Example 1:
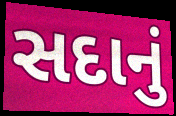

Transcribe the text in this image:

સદાનું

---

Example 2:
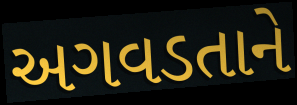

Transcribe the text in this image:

અગવડતાને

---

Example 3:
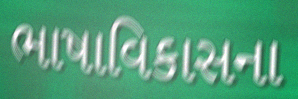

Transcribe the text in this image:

ભાષાવિકાસના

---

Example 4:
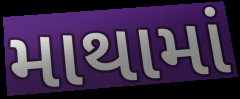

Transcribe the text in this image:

માથામાં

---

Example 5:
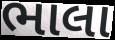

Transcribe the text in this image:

ભાલા